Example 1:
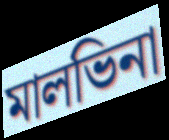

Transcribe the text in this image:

মালভিনা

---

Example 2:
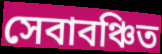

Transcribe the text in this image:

সেবাবঞ্চিত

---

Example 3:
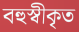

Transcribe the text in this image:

বহুস্বীকৃত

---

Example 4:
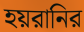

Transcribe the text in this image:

হয়রানির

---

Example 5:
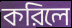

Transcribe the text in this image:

করিলে